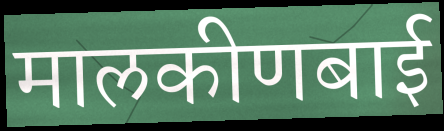
मालकीणबाई